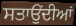
ਸਤਾਉਂਦੀਆਂ